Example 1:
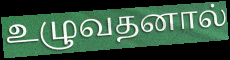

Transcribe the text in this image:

உழுவதனால்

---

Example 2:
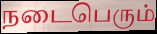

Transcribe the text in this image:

நடைபெரும்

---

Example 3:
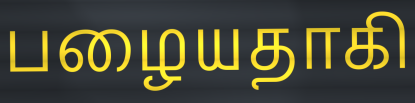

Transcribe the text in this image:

பழையதாகி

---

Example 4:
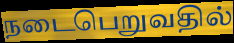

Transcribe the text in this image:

நடைபெறுவதில்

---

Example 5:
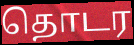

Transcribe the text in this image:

தொடர